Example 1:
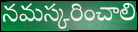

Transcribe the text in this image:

నమస్కరించాలి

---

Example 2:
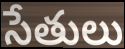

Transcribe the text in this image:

సేతులు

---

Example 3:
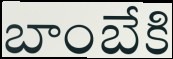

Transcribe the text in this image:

బాంబేకి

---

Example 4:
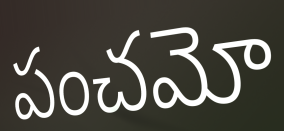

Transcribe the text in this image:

పంచమో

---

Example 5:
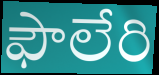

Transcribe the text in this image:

ఫౌలేరి